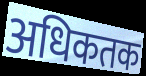
अधिकतक